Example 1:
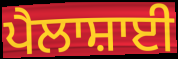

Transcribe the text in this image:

ਪੈਲਾਸ਼ਾਈ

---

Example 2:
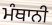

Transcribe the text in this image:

ਮੰਥਾਨੀ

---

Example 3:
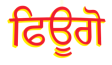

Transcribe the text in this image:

ਫਿਊਗੋ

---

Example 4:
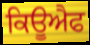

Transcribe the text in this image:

ਕਿਊਐਫ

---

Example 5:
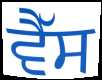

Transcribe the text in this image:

ਵੈੱਸ